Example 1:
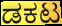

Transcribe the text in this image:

ಡಕಟ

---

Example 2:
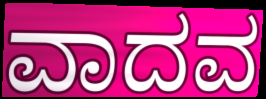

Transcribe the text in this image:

ವಾದವ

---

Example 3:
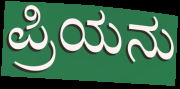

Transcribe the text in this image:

ಪ್ರಿಯನು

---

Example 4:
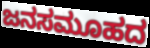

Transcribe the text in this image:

ಜನಸಮೂಹದ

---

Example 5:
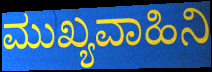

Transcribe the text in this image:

ಮುಖ್ಯವಾಹಿನಿ